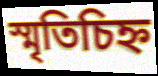
স্মৃতিচিহ্ন